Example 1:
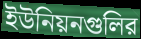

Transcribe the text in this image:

ইউনিয়নগুলির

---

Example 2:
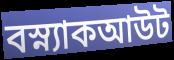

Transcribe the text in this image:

বস্ন্যাকআউট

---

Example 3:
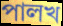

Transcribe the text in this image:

পালখ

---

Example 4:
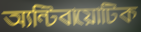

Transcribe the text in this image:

অ্যন্টিবায়োটিক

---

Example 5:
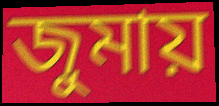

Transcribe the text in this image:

জুমায়